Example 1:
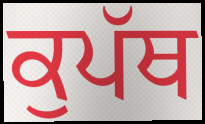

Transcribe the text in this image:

ਕੁਪੱਥ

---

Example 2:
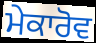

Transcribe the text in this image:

ਮੇਕਾਰੋਵ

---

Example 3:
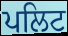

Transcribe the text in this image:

ਪਲਿਟ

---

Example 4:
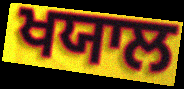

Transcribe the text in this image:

ਖਯਾਲ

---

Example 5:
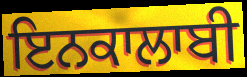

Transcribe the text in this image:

ਇਨਕਾਲਾਬੀ